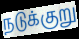
நடுக்குறு